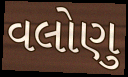
વલોણુ